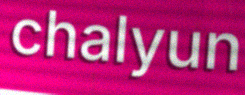
chalyun